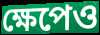
ক্ষেপেও